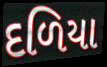
દળિયા